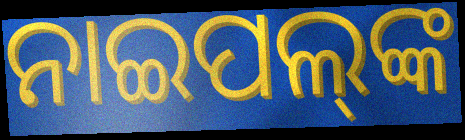
ନାଇପଲ୍‍ଙ୍କ